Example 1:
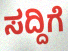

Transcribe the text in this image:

ಸದ್ದಿಗೆ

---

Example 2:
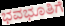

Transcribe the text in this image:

ಭವಭೂತಿಗೆ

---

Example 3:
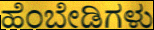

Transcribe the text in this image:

ಹೆಂಬೇಡಿಗಳು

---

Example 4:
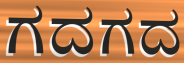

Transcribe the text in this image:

ಗದಗದ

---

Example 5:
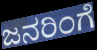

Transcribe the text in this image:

ಜನರಿಂಗೆ